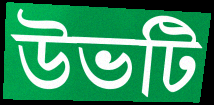
উভটি